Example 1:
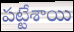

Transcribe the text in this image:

పట్టేశాయి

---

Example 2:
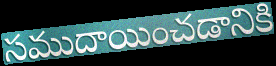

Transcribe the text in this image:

సముదాయించడానికి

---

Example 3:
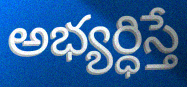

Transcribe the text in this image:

అభ్యర్ధిస్తే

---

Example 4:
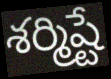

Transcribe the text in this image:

శర్మిష్టే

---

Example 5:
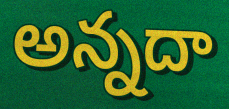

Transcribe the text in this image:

అన్నదా